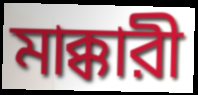
মাক্কারী